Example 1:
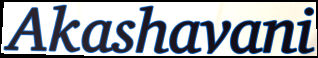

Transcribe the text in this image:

Akashavani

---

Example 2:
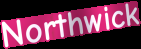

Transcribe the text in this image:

Northwick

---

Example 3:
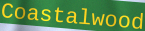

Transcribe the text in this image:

Coastalwood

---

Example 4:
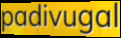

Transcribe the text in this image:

padivugal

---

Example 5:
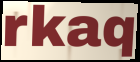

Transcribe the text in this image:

rkaq